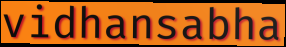
vidhansabha